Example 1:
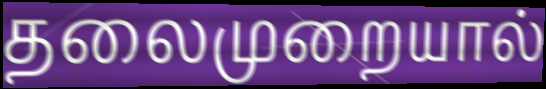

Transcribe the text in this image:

தலைமுறையால்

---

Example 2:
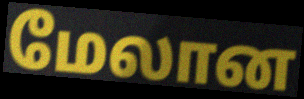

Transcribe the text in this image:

மேலான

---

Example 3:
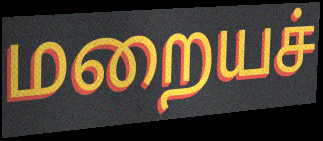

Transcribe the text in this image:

மறையச்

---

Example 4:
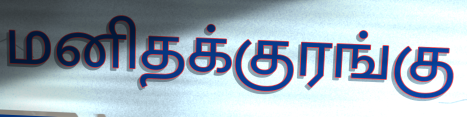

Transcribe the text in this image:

மனிதக்குரங்கு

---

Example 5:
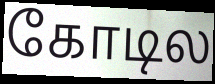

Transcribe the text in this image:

கோடில